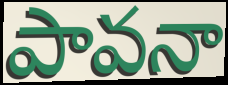
పావనా